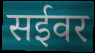
सईवर